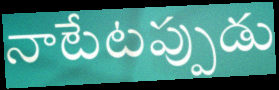
నాటేటప్పుడు